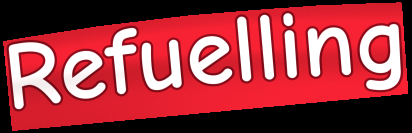
Refuelling